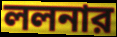
ললনার